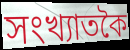
সংখ্যাতকৈ